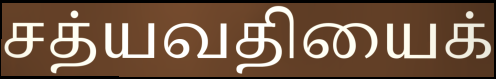
சத்யவதியைக்